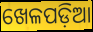
ଖେଳପଡ଼ିଆ